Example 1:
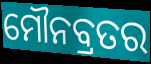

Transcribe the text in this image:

ମୌନବ୍ରତର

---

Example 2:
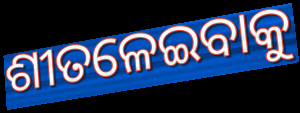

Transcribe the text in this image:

ଶୀତଳେଇବାକୁ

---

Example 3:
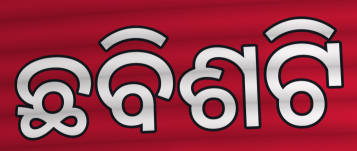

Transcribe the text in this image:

ଛବିଶଟି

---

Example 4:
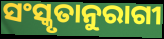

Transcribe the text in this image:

ସଂସ୍କୃତାନୁରାଗୀ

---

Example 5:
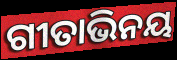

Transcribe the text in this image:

ଗୀତାଭିନୟ